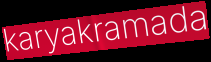
karyakramada